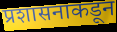
प्रशासनाकडून